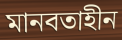
মানবতাহীন